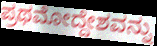
ಪ್ರಥಮೋದ್ದೇಶವನ್ನು